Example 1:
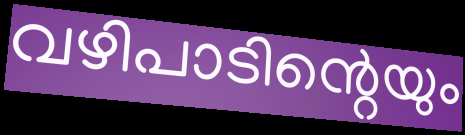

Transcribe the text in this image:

വഴിപാടിന്റെയും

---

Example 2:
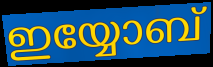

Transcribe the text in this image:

ഇയ്യോബ്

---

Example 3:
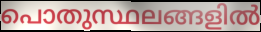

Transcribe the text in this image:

പൊതുസ്ഥലങ്ങളിൽ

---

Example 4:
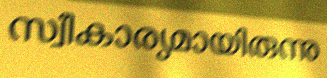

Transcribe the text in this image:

സ്വീകാര്യമായിരുന്നു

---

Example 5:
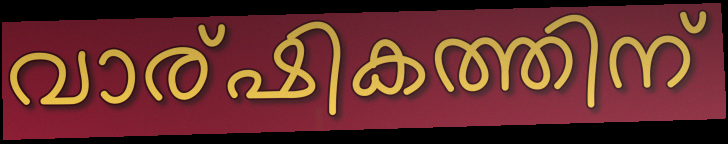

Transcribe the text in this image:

വാര്ഷികത്തിന്